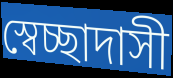
স্বেচ্ছাদাসী